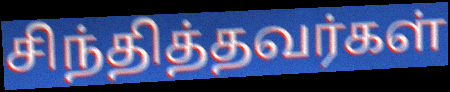
சிந்தித்தவர்கள்